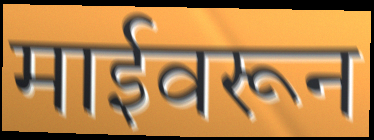
माईवरून